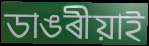
ডাঙৰীয়াই